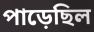
পাড়েছিল